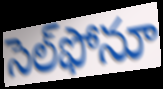
సెల్‌ఫోనూ